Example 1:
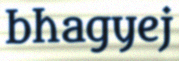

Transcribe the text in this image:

bhagyej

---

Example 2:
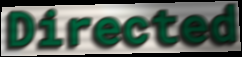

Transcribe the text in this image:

Directed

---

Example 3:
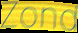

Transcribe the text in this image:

Zond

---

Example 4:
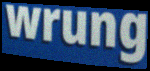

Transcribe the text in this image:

wrung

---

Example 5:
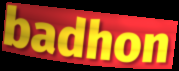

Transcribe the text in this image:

badhon